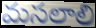
మసలాలి